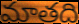
మాతది